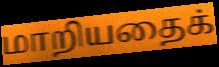
மாறியதைக்